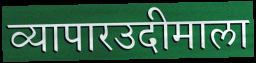
व्यापारउदीमाला